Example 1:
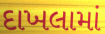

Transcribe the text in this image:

દાખલામાં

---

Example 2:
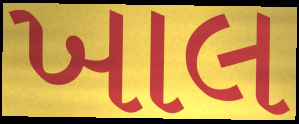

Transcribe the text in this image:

ખાલ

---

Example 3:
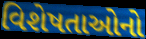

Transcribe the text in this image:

વિશેષતાઓનો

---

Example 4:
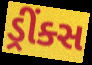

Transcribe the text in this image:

ડ્રીંક્સ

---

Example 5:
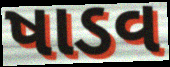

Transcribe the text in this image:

ષાડવ